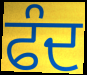
ਫੰਦ